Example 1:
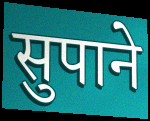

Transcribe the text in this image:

सुपाने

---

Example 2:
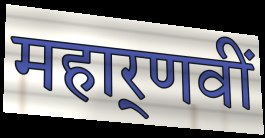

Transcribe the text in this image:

महार्णवीं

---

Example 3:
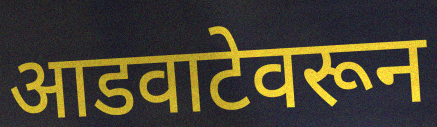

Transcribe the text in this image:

आडवाटेवरून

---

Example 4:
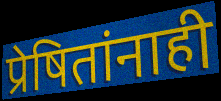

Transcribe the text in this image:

प्रेषितांनाही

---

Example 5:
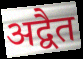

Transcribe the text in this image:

अद्वैत